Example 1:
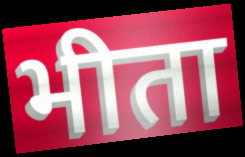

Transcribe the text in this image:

भीता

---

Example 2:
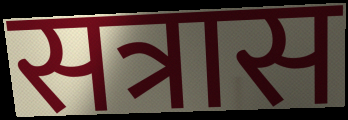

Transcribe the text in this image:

सत्रास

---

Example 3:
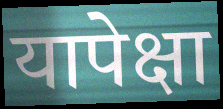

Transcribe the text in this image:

यापेक्षा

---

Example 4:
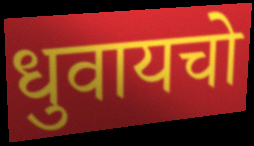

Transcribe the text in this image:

धुवायचो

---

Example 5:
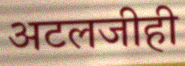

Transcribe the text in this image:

अटलजीही